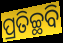
ପ୍ରତିଚ୍ଛବି